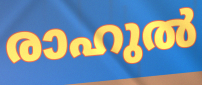
രാഹുൽ